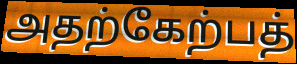
அதற்கேற்பத்